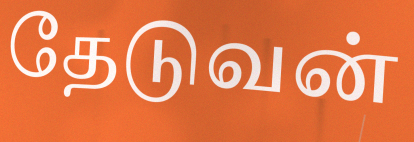
தேடுவன்